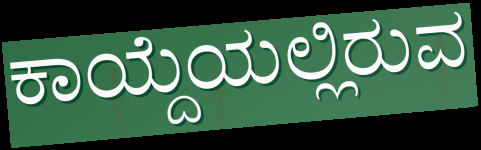
ಕಾಯ್ದೆಯಲ್ಲಿರುವ